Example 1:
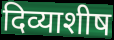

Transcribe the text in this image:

दिव्याशीष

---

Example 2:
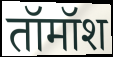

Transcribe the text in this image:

तॉमॉश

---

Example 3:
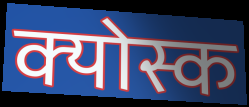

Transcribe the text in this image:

क्योस्क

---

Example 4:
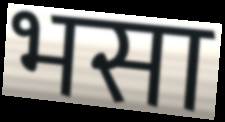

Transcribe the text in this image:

भसा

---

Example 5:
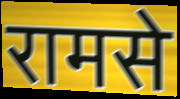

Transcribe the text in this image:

रामसे